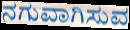
ನಗುವಾಗಿಸುವ